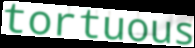
tortuous